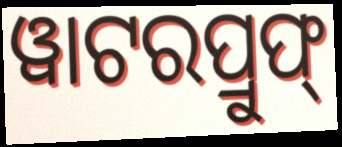
ୱାଟରପ୍ରୁଫ୍